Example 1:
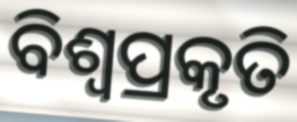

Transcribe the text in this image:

ବିଶ୍ଵପ୍ରକୃତି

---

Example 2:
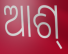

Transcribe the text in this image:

ଆଶ୍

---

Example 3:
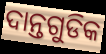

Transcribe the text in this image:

ଦାନ୍ତଗୁଡିକ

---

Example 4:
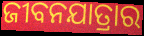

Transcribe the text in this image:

ଜୀବନଯାତ୍ରାର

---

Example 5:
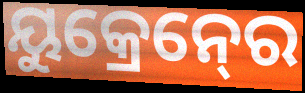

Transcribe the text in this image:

ୟୁକ୍ରେନ୍‍ରେ